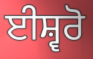
ਈਸ਼੍ਵਰੋ